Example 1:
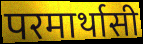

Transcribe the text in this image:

परमार्थासी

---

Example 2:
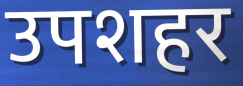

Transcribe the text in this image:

उपशहर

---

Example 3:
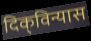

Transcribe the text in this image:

दिक्‌विन्यास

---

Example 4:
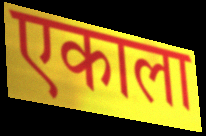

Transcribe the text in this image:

एकाला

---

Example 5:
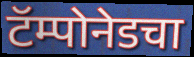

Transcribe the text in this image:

टॅम्पोनेडचा